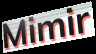
Mimir